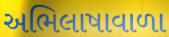
અભિલાષાવાળા